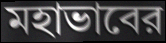
মহাভাবের